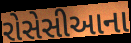
રોસેસીઆના